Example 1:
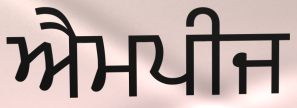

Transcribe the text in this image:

ਐਮਪੀਜ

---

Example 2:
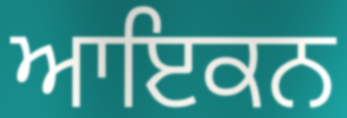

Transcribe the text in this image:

ਆਇਕਨ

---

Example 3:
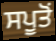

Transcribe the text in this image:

ਸਪੂਤੋਂ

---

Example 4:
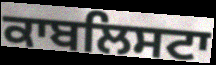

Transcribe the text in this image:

ਕਾਬਲਿਸਟਾ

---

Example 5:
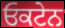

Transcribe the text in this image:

ਓਕਟੇਨ